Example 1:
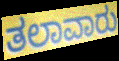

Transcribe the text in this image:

ತಲಾವಾರು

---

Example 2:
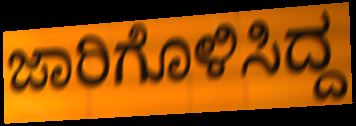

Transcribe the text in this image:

ಜಾರಿಗೊಳಿಸಿದ್ದ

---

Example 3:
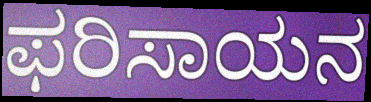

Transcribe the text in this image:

ಫರಿಸಾಯನ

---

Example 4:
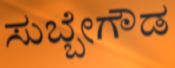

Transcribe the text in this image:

ಸುಬ್ಬೇಗೌಡ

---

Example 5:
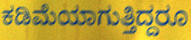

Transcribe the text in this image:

ಕಡಿಮೆಯಾಗುತ್ತಿದ್ದರೂ